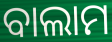
ବାଲାମ